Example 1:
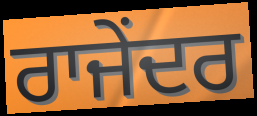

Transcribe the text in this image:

ਰਾਜੇਂਦਰ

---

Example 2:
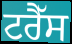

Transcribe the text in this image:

ਟਰੈੱਸ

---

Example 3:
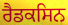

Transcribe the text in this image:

ਰੈਡਕਸਿਨ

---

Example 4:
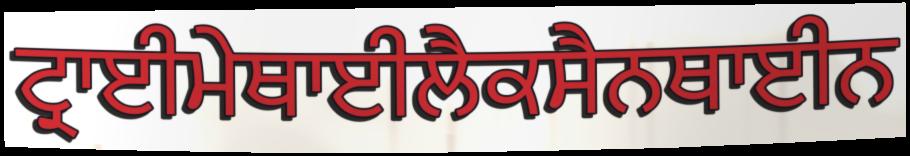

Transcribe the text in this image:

ਟ੍ਰਾਈਮੇਥਾਈਲੈਕਸੈਨਥਾਈਨ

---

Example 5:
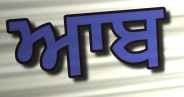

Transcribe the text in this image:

ਆਬ